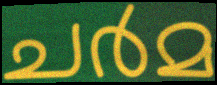
ചർമ